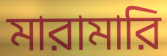
মারামারি